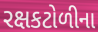
રક્ષકટોળીના